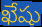
ఖేషు